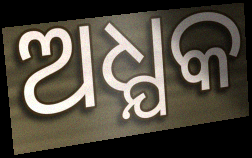
ଅଧ୍ଯକ